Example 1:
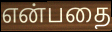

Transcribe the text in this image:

என்பதை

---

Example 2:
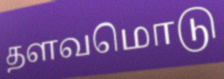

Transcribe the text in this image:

தளவமொடு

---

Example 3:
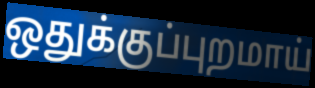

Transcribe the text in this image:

ஒதுக்குப்புறமாய்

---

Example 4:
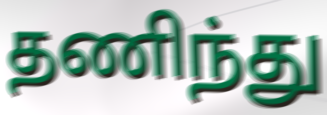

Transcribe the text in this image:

தணிந்து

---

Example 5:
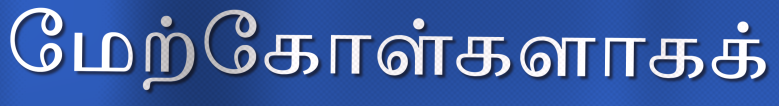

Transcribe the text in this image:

மேற்கோள்களாகக்